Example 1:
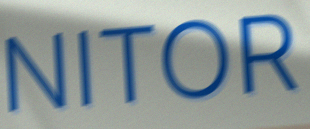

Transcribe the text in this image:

NITOR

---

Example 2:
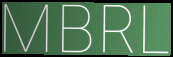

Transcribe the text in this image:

MBRL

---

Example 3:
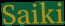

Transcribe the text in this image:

Saiki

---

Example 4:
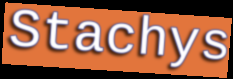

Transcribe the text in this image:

Stachys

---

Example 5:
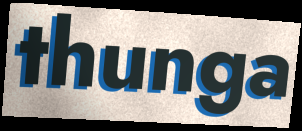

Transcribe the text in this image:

thunga